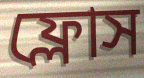
ফ্লোস